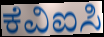
ಕೆವಿಐಸಿ